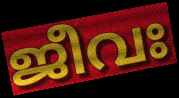
ജീവഃ